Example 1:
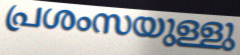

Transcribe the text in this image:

പ്രശംസയുള്ളു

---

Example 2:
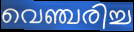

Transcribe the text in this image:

വെഞ്ചരിച്ച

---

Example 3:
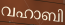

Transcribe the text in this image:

വഹാബി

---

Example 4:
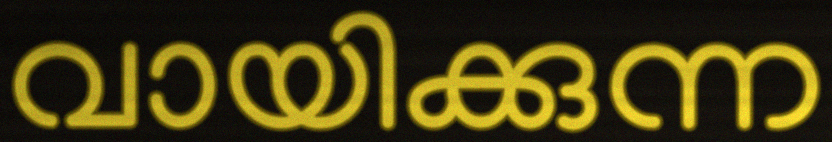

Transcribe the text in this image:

വായിക്കുന്ന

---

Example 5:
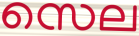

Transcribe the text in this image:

സെല